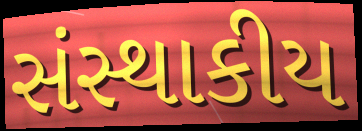
સંસ્થાકીય